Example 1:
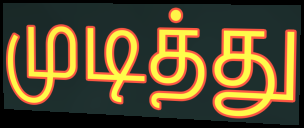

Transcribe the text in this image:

முடித்து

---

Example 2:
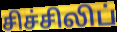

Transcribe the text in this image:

சிச்சிலிப்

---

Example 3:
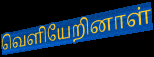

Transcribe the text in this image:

வெளியேறினாள்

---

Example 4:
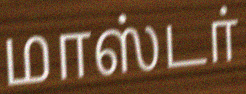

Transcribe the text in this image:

மாஸ்டர்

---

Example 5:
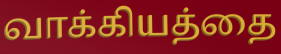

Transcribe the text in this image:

வாக்கியத்தை